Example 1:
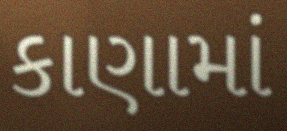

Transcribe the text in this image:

કાણામાં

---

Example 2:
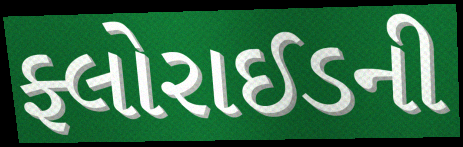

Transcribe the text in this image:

ફ્લોરાઈડની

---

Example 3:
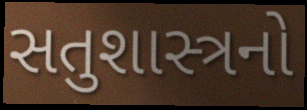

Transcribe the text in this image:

સતુશાસ્ત્રનો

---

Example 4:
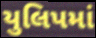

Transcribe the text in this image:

યુલિપમાં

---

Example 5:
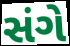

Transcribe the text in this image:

સંગે